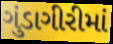
ગુંડાગીરીમાં